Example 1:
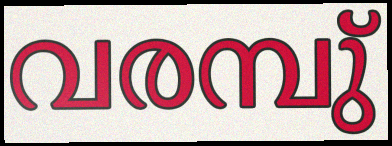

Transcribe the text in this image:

വരമ്പു്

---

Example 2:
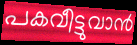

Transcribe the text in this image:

പകവീട്ടുവാൻ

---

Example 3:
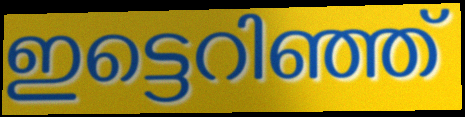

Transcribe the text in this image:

ഇട്ടെറിഞ്ഞ്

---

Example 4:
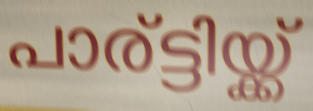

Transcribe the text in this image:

പാര്ട്ടിയ്ക്ക്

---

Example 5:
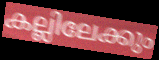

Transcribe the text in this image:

കല്ലിലേക്കും